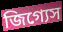
জিগ্যেস